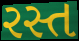
રસ્ત